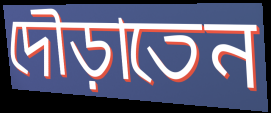
দৌড়াতেন